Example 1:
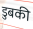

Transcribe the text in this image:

डुबकी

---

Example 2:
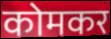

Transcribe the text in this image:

कोमकर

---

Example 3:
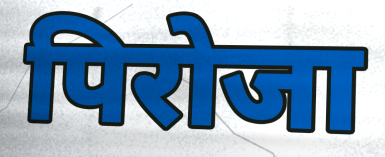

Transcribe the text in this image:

पिरोजा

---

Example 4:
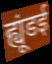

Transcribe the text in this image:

ह्यूंडई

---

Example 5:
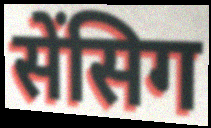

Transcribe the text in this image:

सेंसिग